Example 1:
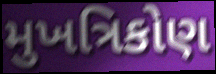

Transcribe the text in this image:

મુખત્રિકોણ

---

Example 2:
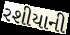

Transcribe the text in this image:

રશીયાની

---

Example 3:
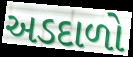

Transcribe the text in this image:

અડદાળો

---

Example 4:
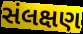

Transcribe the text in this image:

સંલક્ષણ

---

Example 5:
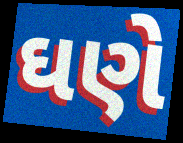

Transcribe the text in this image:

ઘણે